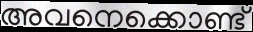
അവനെക്കൊണ്ട്